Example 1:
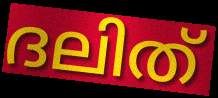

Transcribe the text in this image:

ദലിത്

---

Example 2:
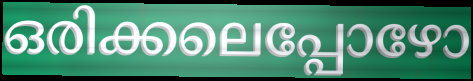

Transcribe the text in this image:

ഒരിക്കലെപ്പോഴോ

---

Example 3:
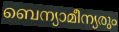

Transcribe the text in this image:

ബെന്യാമീന്യരും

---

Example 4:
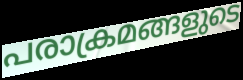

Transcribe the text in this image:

പരാക്രമങ്ങളുടെ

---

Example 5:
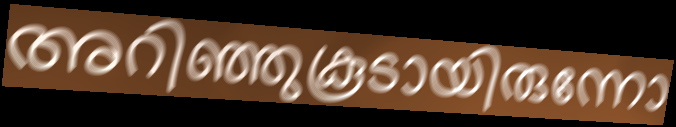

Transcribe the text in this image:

അറിഞ്ഞുകൂടായിരുന്നോ